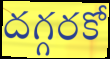
దగ్గరకో